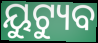
ୟୁଟ୍ୟୁବ